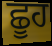
ਛੂਹ